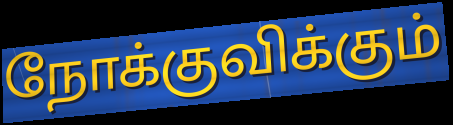
நோக்குவிக்கும்